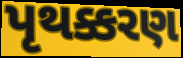
પૃથક્કરણ